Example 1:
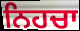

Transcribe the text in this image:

ਨਿਹਚਾ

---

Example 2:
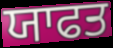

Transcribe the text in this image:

ਯਾਫਤ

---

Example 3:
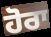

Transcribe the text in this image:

ਹੋਰਾ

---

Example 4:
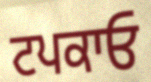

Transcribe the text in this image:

ਟਪਕਾਓ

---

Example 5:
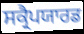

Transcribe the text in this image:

ਸਕ੍ਰੈਪਯਾਰਡ